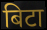
बिटा